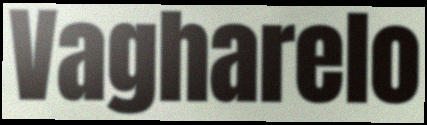
Vagharelo